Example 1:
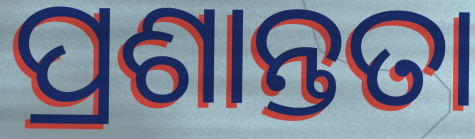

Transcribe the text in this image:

ପ୍ରଶାନ୍ତତା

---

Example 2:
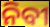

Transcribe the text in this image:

ନିବୀ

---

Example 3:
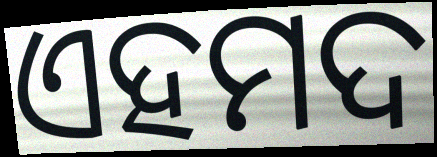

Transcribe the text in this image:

ଏହମଦ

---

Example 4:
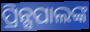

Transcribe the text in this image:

ପ୍ରିନ୍ସପାଲଙ୍କ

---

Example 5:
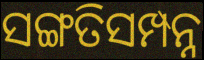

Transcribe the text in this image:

ସଙ୍ଗତିସମ୍ପନ୍ନ